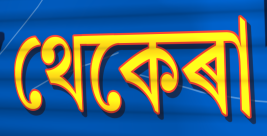
থেকেৰা